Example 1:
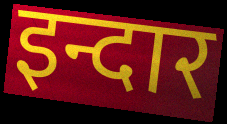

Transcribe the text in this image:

इन्दार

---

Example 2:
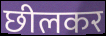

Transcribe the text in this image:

छीलकर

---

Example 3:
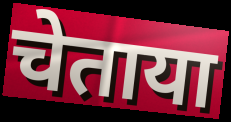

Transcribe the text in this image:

चेताया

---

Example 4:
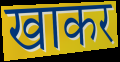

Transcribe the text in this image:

खाकर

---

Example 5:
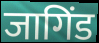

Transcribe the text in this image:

जागिंड